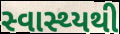
સ્વાસ્થ્યથી